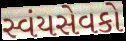
સ્વંયસેવકો